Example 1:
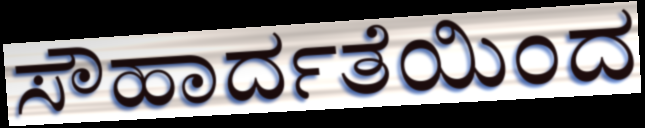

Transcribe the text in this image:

ಸೌಹಾರ್ದತೆಯಿಂದ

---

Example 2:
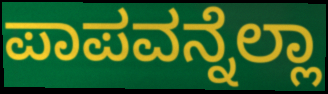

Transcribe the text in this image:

ಪಾಪವನ್ನೆಲ್ಲಾ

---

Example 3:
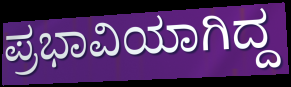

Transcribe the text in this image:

ಪ್ರಭಾವಿಯಾಗಿದ್ದ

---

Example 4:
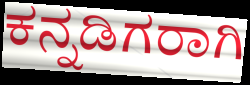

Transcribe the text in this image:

ಕನ್ನಡಿಗರಾಗಿ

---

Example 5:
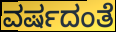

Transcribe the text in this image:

ವರ್ಷದಂತೆ